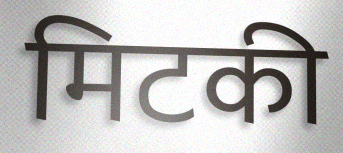
मिटकी